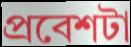
প্রবেশটা